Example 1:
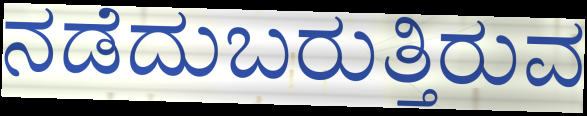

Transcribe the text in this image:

ನಡೆದುಬರುತ್ತಿರುವ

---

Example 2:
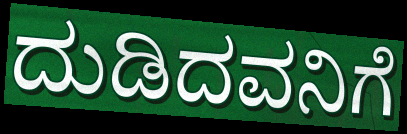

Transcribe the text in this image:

ದುಡಿದವನಿಗೆ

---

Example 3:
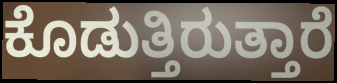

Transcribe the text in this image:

ಕೊಡುತ್ತಿರುತ್ತಾರೆ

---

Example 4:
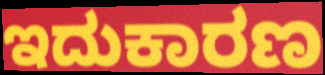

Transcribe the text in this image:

ಇದುಕಾರಣ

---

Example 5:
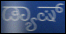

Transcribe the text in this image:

ಡ್ಯಾಷ್